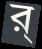
র্